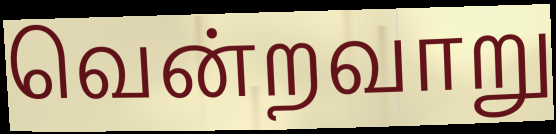
வென்றவாறு